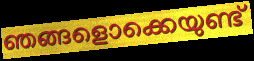
ഞങ്ങളൊക്കെയുണ്ട്